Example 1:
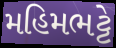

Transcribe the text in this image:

મહિમભટ્ટે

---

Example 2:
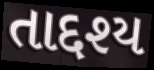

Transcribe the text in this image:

તાદ્દશ્ય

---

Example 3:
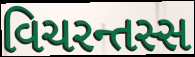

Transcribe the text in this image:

વિચરન્તસ્સ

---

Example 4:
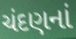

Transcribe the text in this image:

ચંદણનાં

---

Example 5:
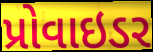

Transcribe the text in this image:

પ્રોવાઇડર